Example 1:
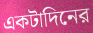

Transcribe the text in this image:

একটাদিনের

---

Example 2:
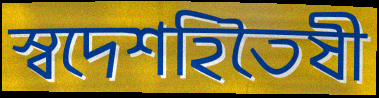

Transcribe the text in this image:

স্বদেশহিতৈষী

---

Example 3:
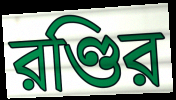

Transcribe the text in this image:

রণ্ডির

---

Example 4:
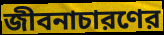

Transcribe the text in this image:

জীবনাচারণের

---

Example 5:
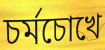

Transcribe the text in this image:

চর্মচোখে